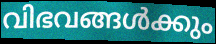
വിഭവങ്ങൾക്കും